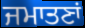
ਜਮਾਤਣਾਂ